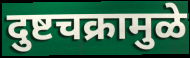
दुष्टचक्रामुळे